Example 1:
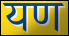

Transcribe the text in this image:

यण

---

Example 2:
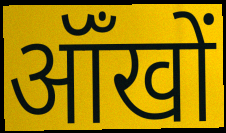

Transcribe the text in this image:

ऑँखों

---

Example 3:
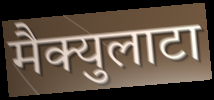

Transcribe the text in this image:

मैक्युलाटा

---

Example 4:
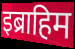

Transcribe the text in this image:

इब्राहिम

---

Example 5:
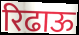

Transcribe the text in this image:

रिढाऊ